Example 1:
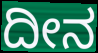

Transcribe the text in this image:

ದೀನ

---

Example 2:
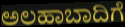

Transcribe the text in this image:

ಅಲಹಾಬಾದಿಗೆ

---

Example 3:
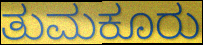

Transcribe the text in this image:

ತುಮಕೂರು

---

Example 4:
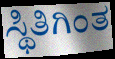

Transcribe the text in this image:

ಸ್ಥಿತಿಗಿಂತ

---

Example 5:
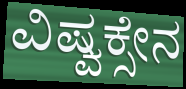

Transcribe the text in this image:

ವಿಷ್ವಕ್ಸೇನ